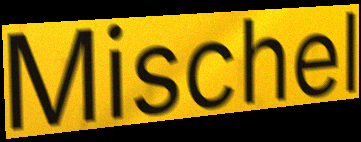
Mischel